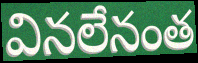
వినలేనంత